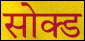
सोक्ड